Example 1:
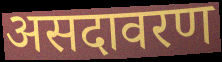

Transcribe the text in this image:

असदावरण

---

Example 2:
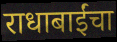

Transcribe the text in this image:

राधाबाईंचा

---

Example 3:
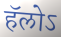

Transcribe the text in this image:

हॅलोऽ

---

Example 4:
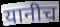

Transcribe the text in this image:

यानीच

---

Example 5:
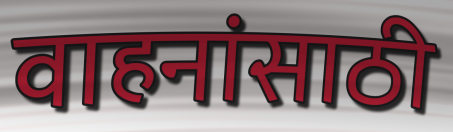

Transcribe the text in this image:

वाहनांसाठी